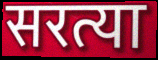
सरत्या